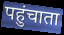
पहुंचाता